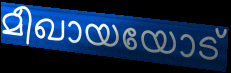
മീഖായയോട്